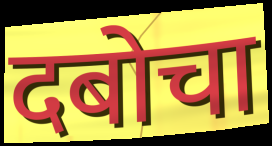
दबोचा